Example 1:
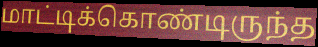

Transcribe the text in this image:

மாட்டிக்கொண்டிருந்த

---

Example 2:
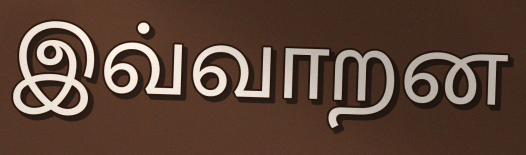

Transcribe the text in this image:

இவ்வாறன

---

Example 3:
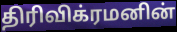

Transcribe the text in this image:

திரிவிக்ரமனின்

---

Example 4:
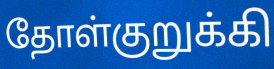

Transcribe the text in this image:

தோள்குறுக்கி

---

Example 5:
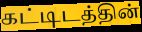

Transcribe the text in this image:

கட்டிடத்தின்